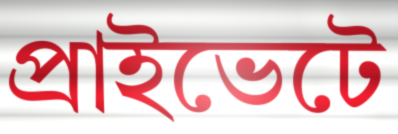
প্রাইভেটে